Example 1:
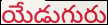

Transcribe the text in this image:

యేడుగురు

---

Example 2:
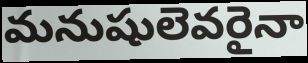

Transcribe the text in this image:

మనుషులెవరైనా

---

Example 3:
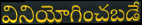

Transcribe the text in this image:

వినియోగించబడే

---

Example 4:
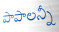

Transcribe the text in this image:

పాపాలన్నీ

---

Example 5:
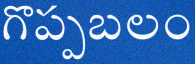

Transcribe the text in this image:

గొప్పబలం